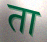
ता